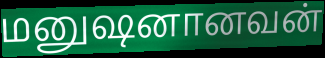
மனுஷனானவன்